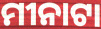
ମୀନାଟା